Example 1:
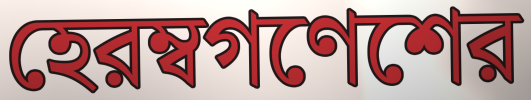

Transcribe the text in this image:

হেরম্বগণেশের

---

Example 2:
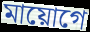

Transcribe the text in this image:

মায়োগে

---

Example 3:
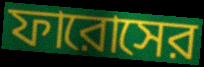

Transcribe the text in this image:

ফারোসের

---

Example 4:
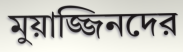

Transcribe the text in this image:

মুয়াজ্জিনদের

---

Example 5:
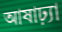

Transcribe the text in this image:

আষাঢ়্যা